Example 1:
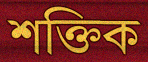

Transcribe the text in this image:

শক্তিক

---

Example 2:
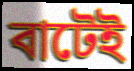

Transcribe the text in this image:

বাটেই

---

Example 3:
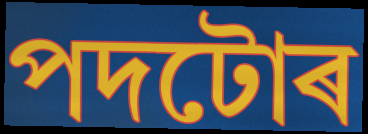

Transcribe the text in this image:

পদটোৰ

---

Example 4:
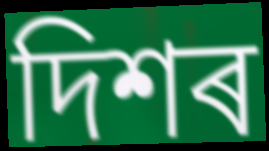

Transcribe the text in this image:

দিশৰ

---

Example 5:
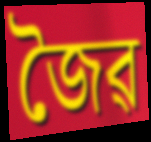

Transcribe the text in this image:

জৈৱ